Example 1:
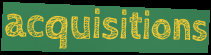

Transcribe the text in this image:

acquisitions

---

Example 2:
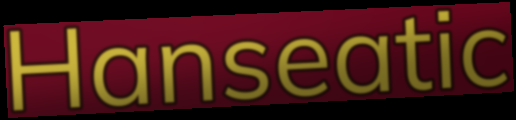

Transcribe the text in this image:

Hanseatic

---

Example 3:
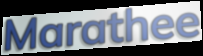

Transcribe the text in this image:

Marathee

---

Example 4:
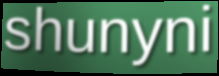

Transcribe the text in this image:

shunyni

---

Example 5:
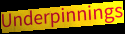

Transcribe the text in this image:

Underpinnings